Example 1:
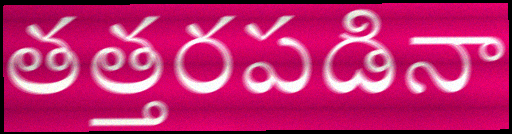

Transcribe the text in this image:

తత్తరపడినా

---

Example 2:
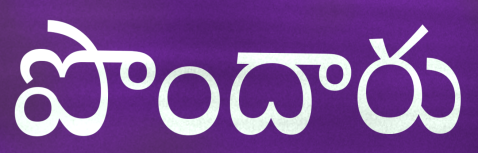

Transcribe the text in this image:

పొందారు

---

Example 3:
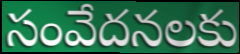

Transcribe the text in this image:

సంవేదనలకు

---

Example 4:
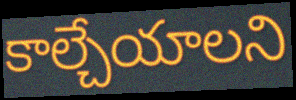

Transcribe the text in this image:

కాల్చేయాలని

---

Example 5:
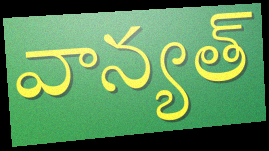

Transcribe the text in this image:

వాన్యత్